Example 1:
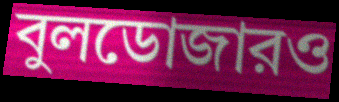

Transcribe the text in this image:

বুলডোজারও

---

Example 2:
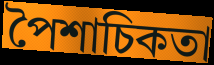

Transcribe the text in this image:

পৈশাচিকতা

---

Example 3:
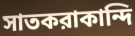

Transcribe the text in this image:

সাতকরাকান্দি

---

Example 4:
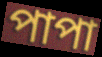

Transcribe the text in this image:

পাপা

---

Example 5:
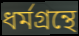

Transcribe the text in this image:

ধর্মগ্রন্থে